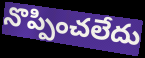
నొప్పించలేదు